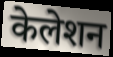
केलेशन